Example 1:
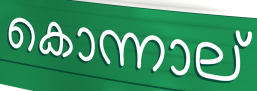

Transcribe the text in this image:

കൊന്നാല്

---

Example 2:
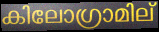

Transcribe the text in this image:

കിലോഗ്രാമില്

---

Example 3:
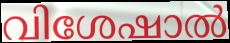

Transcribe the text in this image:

വിശേഷാൽ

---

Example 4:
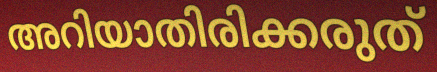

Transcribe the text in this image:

അറിയാതിരിക്കരുത്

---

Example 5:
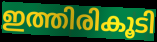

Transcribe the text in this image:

ഇത്തിരികൂടി